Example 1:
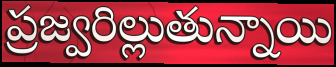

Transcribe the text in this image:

ప్రజ్వరిల్లుతున్నాయి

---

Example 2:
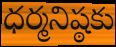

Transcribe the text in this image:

ధర్మనిష్ఠకు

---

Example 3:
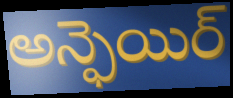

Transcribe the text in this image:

అన్ఫెయిర్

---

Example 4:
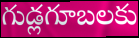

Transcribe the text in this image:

గుడ్లగూబలకు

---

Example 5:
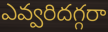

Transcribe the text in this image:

ఎవ్వరిదగ్గరా